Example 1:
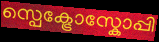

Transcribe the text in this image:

സ്പെക്ട്രോസ്കോപ്പി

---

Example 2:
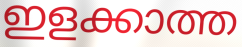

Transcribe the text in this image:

ഇളക്കാത്ത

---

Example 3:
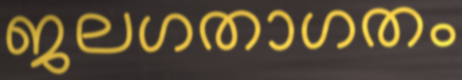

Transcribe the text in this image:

ജലഗതാഗതം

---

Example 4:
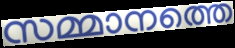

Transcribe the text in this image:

സമ്മാനത്തെ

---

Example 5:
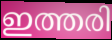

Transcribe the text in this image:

ഇത്തരി